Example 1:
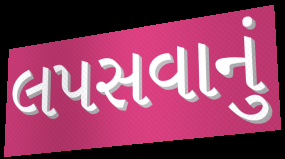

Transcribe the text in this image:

લપસવાનું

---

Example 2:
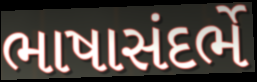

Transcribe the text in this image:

ભાષાસંદર્ભે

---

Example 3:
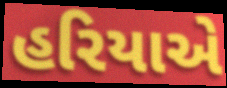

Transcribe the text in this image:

હરિયાએ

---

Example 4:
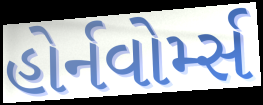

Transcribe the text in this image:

હોર્નવોર્મ્સ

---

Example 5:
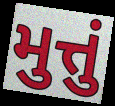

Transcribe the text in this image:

મુત્તું